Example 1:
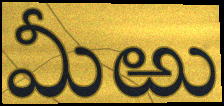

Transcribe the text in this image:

మీఱు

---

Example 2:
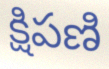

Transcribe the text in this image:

క్షిపణి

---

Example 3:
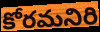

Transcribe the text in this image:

కోరమనిరి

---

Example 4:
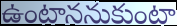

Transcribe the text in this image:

ఉంటాననుకుంటా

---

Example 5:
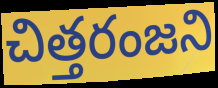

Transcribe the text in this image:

చిత్తరంజని